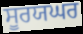
ਸੂਰਯਘਰ